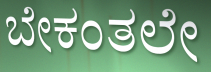
ಬೇಕಂತಲೇ